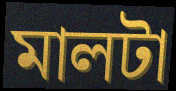
মালটা